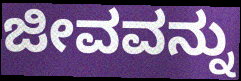
ಜೀವವನ್ನು